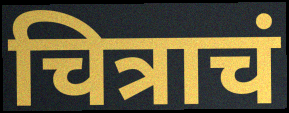
चित्राचं